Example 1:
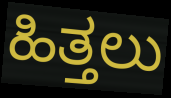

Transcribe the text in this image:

ಹಿತ್ತಲು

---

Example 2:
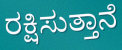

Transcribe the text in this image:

ರಕ್ಷಿಸುತ್ತಾನೆ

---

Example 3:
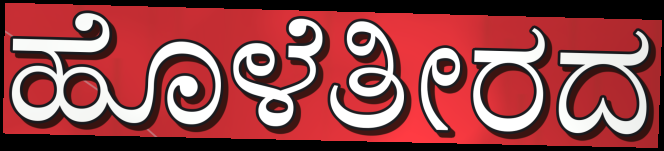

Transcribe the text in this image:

ಹೊಳೆತೀರದ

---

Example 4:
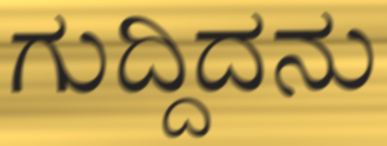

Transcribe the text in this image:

ಗುದ್ದಿದನು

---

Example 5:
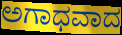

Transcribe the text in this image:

ಅಗಾಧವಾದ